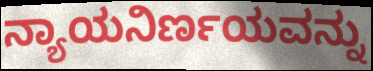
ನ್ಯಾಯನಿರ್ಣಯವನ್ನು